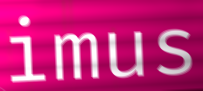
imus